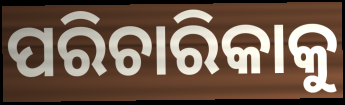
ପରିଚାରିକାକୁ